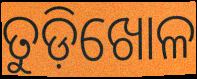
ତୁଡ଼ିଖୋଳ